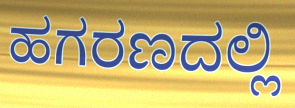
ಹಗರಣದಲ್ಲಿ